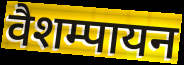
वैशम्पायन